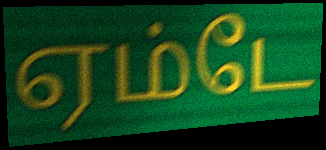
ஏம்டே